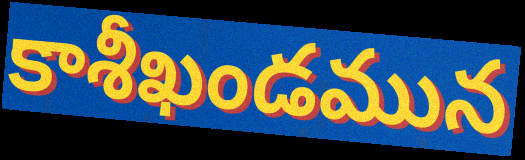
కాశీఖండమున